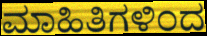
ಮಾಹಿತಿಗಳಿಂದ